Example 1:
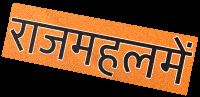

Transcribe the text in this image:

राजमहलमें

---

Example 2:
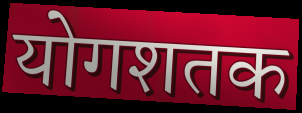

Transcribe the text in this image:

योगशतक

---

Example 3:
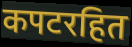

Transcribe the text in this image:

कपटरहित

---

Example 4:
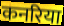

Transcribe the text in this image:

कनरिया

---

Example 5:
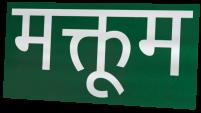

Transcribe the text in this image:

मक्तूम